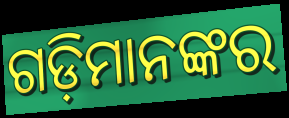
ଗଡ଼ିମାନଙ୍କର